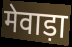
मेवाड़ा